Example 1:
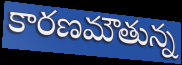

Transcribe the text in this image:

కారణమౌతున్న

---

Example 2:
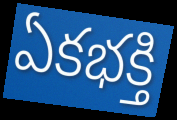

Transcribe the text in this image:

ఏకభక్తి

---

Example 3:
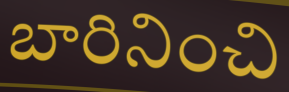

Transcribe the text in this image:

బారినించి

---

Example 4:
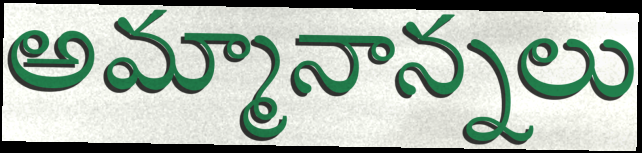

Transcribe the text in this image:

అమ్మానాన్నలు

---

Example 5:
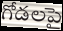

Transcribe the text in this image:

గోడలపై